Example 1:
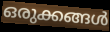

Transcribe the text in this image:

ഒരുക്കങ്ങൾ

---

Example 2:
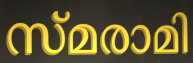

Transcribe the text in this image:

സ്മരാമി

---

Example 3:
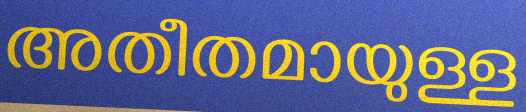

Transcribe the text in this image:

അതീതമായുള്ള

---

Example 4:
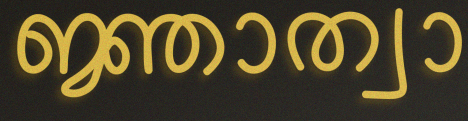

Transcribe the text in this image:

ജ്ഞാത്വാ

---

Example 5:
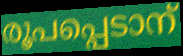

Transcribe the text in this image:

രൂപപ്പെടാന്